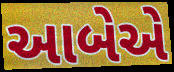
આબેએ